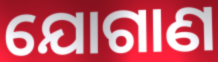
ଯୋଗାଣ